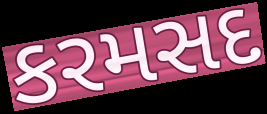
કરમસદ